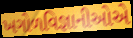
ખગોળવિજ્ઞાનીઓએ